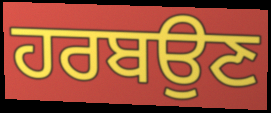
ਹਰਬਉਣ